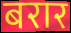
बरार